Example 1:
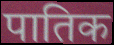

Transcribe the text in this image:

पातिक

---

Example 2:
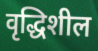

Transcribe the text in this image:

वृद्धिशील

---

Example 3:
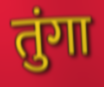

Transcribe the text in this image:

तुंगा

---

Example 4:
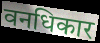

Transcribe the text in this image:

वनधिकार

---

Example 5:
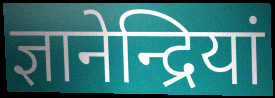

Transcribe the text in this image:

ज्ञानेन्द्रियां